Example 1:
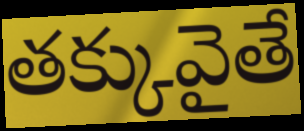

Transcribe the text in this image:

తక్కువైతే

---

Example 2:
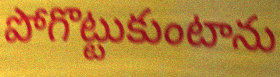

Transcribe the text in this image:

పోగొట్టుకుంటాను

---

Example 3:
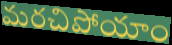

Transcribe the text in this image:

మరచిపోయాం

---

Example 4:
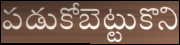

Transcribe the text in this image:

పడుకోబెట్టుకొని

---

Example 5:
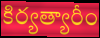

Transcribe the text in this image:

కిర్యత్యారీం